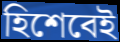
হিশেবেই